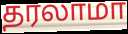
தரலாமா